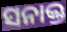
ସନାକ୍ତ